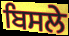
ਬਿਸਲੇ